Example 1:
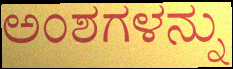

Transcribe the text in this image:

ಅಂಶಗಳನ್ನು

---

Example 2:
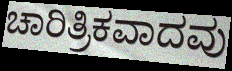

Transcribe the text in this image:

ಚಾರಿತ್ರಿಕವಾದವು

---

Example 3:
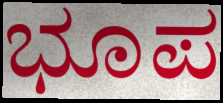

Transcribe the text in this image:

ಭೂಪ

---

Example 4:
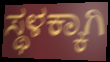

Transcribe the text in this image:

ಸ್ಥಳಕ್ಕಾಗಿ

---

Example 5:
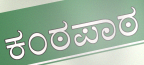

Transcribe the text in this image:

ಕಂಠಪಾಠ